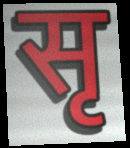
सृ